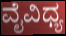
ವೈವಿಧ್ಯ